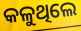
କଳୁଥିଲେ